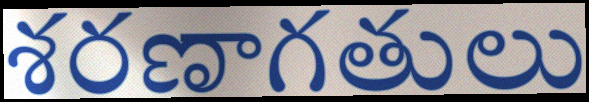
శరణాగతులు